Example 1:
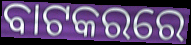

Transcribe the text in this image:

ବାଟକରରେ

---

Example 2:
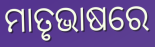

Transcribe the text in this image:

ମାତୃଭାଷରେ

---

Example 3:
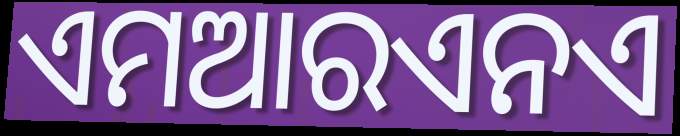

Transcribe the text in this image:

ଏମଆରଏନଏ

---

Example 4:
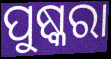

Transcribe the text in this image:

ପୁଷ୍କରା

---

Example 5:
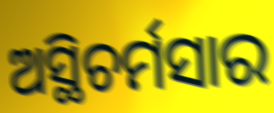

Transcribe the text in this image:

ଅସ୍ଥିଚର୍ମସାର